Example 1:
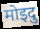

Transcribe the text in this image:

मोइदु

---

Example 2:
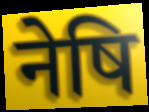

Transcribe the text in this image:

नेषि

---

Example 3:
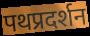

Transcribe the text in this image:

पथप्रदर्शन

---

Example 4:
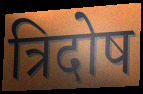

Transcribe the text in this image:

त्रिदोष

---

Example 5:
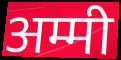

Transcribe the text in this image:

अम्मी